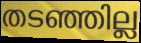
തടഞ്ഞില്ല